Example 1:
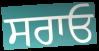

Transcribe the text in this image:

ਸਰਾਓ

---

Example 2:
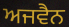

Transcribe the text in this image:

ਅਜਵੈਨ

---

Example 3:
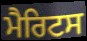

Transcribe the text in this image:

ਮੈਰਿਟਸ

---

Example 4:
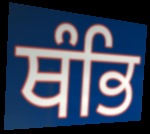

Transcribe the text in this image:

ਥੰਭਿ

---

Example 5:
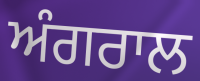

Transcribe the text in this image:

ਅੰਗਰਾਲ